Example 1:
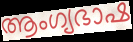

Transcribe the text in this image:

ആംഗ്യഭാഷ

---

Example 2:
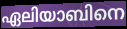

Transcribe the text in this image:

ഏലിയാബിനെ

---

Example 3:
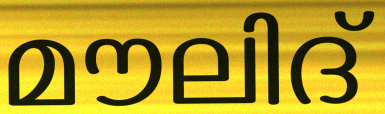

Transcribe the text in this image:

മൗലിദ്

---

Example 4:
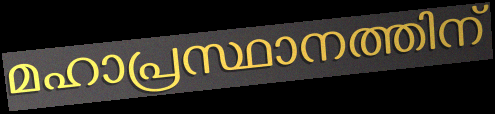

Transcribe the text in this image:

മഹാപ്രസ്ഥാനത്തിന്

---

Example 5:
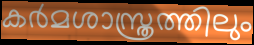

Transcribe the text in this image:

കർമശാസ്ത്രത്തിലും